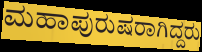
ಮಹಾಪುರುಷರಾಗಿದ್ದರು